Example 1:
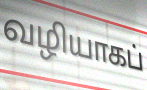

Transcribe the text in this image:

வழியாகப்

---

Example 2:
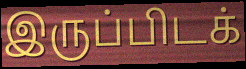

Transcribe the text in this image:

இருப்பிடக்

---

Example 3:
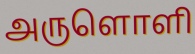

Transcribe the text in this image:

அருளொளி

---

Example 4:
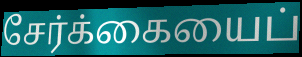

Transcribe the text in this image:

சேர்க்கையைப்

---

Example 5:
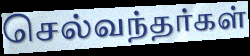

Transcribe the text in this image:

செல்வந்தர்கள்